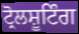
ਟ੍ਰੋਲਸ਼ੂਟਿੰਗ